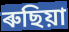
ৰুছিয়া